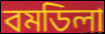
বমডিলা